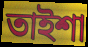
তাইশা